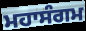
ਮਹਾਸੰਗਮ